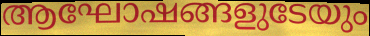
ആഘോഷങ്ങളുടേയും